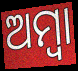
ଅମ୍ବା